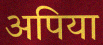
अपिया